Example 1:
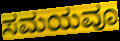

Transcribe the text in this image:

ಸಮಯವೂ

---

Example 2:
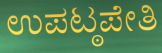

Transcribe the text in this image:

ಉಪಟ್ಠಪೇತಿ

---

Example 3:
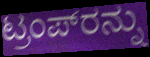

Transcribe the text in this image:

ಟ್ರಂಪ್‌ರನ್ನು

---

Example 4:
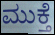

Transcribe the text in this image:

ಮುಕ್ತೆ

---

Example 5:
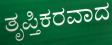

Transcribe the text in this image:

ತೃಪ್ತಿಕರವಾದ